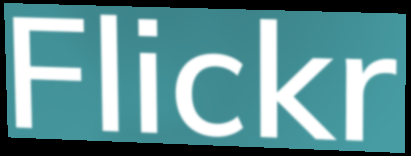
Flickr